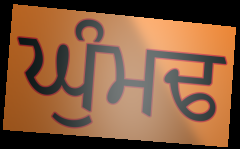
ਘੁੰਮਢ